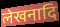
लेखनादि